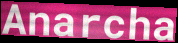
Anarcha